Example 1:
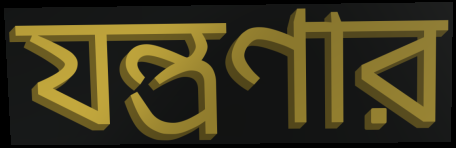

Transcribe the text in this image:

যন্ত্রণার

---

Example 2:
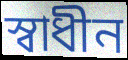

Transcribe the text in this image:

স্বাধীন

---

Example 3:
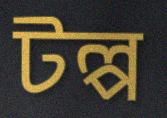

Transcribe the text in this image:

টল্প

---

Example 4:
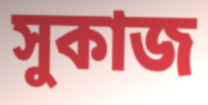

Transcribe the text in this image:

সুকাজ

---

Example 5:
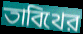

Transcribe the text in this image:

তাবিথের